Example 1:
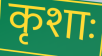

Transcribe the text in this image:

कृशाः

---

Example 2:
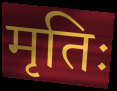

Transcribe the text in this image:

मृतिः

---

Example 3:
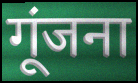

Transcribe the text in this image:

गूंजना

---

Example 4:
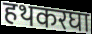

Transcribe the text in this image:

हथकरघा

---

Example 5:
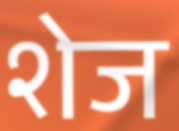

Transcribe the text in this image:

शेज